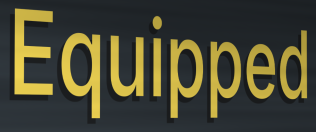
Equipped